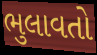
ભુલાવતો